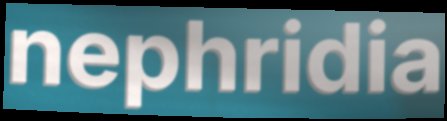
nephridia